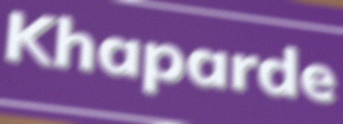
Khaparde